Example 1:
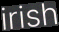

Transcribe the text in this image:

irish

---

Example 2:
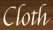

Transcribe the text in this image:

Cloth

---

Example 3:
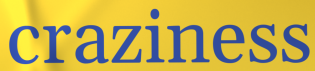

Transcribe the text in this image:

craziness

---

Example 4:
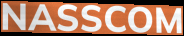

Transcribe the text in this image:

NASSCOM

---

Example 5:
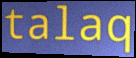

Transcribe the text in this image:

talaq